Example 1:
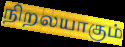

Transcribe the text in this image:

நிறலயாகும்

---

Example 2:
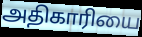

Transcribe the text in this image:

அதிகாரியை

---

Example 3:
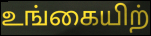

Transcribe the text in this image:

உங்கையிற்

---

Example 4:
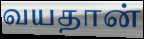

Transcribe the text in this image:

வயதான்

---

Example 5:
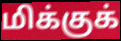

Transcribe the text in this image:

மிக்குக்